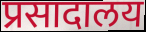
प्रसादालय